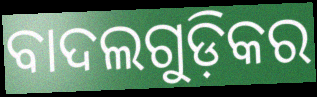
ବାଦଲଗୁଡ଼ିକର